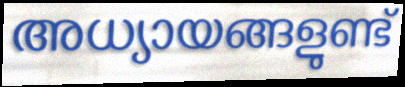
അധ്യായങ്ങളുണ്ട്